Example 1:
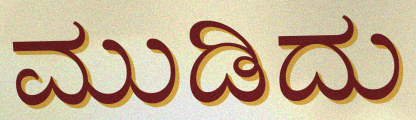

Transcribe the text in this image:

ಮುಡಿದು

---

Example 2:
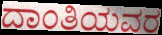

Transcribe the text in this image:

ದಾಂತಿಯವರ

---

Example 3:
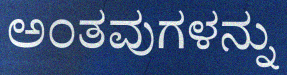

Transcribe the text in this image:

ಅಂತವುಗಳನ್ನು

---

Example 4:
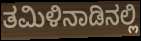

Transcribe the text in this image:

ತಮಿಳಿನಾಡಿನಲ್ಲಿ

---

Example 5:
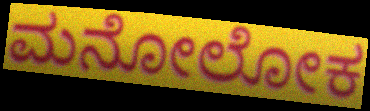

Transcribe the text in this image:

ಮನೋಲೋಕ